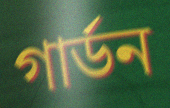
গার্ডন